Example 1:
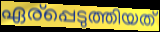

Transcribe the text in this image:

ഏര്പ്പെടുത്തിയത്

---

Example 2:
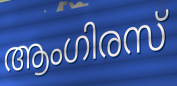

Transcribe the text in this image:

ആംഗിരസ്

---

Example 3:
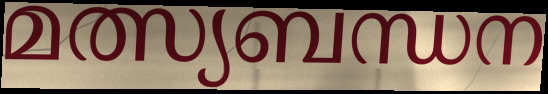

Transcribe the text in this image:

മത്സ്യബന്ധന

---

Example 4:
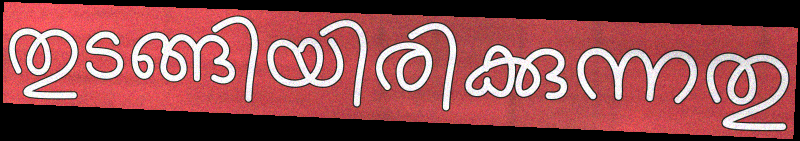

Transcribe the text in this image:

തുടങ്ങിയിരിക്കുന്നതു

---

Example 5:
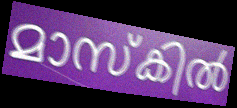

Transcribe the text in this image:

മാസ്കിൽ